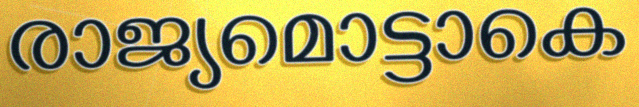
രാജ്യമൊട്ടാകെ